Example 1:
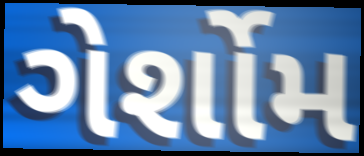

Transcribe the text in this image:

ગેર્શોમ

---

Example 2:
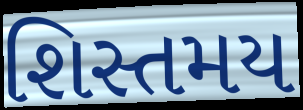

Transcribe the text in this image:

શિસ્તમય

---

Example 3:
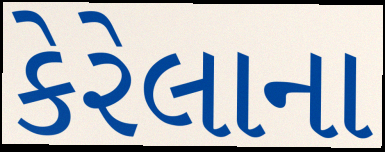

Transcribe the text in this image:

કેરેલાના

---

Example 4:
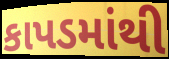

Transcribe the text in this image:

કાપડમાંથી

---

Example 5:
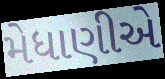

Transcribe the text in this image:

મેધાણીએ